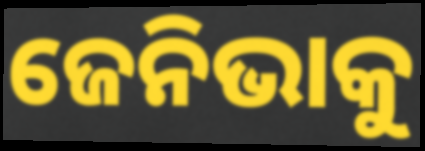
ଜେନିଭାକୁ